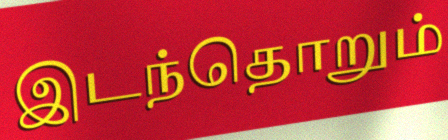
இடந்தொறும்